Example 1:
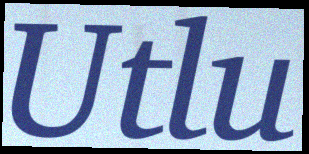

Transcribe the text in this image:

Utlu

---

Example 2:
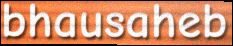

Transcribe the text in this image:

bhausaheb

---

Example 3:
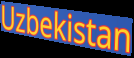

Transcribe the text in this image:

Uzbekistan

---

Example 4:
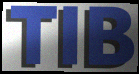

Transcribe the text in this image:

TIB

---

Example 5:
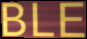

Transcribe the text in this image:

BLE